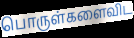
பொருள்களைவிட